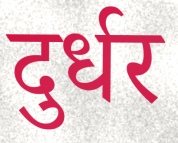
दुर्धर